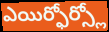
ఎయిర్ఫోర్స్లో